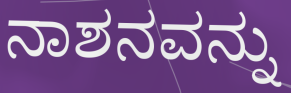
ನಾಶನವನ್ನು